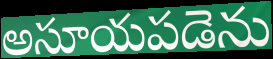
అసూయపడెను